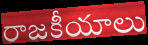
రాజకీయాలు